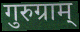
गुरुग्राम्